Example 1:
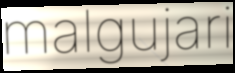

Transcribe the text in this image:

malgujari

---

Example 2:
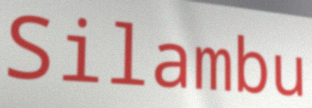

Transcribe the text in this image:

Silambu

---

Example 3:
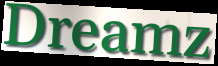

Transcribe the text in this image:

Dreamz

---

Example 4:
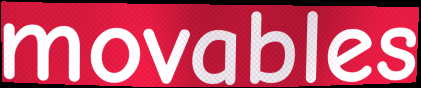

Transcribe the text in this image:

movables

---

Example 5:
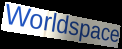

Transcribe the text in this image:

Worldspace